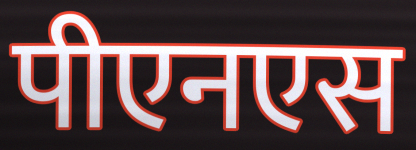
पीएनएस